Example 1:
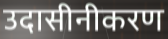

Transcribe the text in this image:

उदासीनीकरण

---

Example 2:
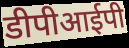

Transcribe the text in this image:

डीपीआईपी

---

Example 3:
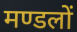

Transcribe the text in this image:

मण्डलों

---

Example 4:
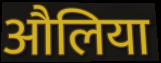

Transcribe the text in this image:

औलिया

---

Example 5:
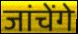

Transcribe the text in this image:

जांचेंगे